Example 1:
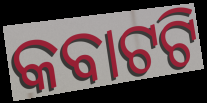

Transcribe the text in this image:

କବାଟଟି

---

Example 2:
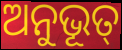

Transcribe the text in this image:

ଅନୁଭୂତ୍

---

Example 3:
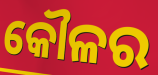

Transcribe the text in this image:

କୌଳର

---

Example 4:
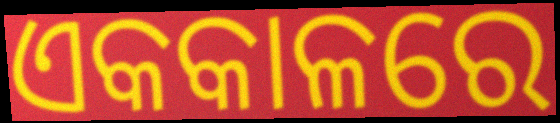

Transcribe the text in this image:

ଏକକାଳରେ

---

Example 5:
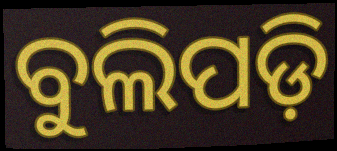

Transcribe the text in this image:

ବୁଲିପଡ଼ି